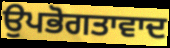
ਉਪਭੋਗਤਾਵਾਦ